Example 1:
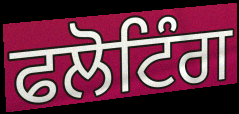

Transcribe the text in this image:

ਫਲੋਟਿੰਗ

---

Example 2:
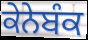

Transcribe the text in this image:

ਕੇਨੇਬੰਕ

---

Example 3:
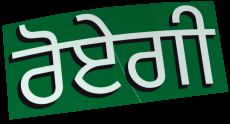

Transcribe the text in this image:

ਰੋਏਗੀ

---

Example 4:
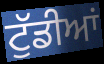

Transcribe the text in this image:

ਟੁੱਡੀਆਂ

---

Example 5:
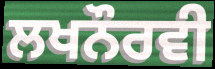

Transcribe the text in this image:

ਲਖਨੌਰਵੀ